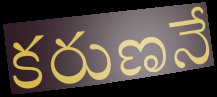
కరుణనే